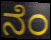
ನೆಂ